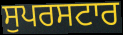
ਸੁਪਰਸਟਾਰ